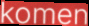
komen